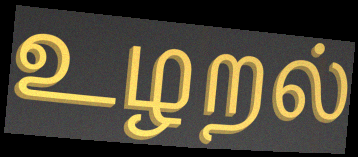
உழறல்